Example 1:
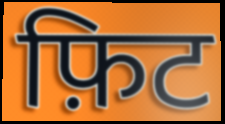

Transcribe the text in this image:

फ़िट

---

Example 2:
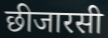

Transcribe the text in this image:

छीजारसी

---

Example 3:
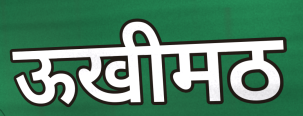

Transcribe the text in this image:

ऊखीमठ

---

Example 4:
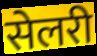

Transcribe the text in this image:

सेलरी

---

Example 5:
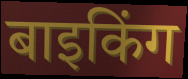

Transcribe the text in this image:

बाइकिंग